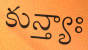
కున్త్యాః